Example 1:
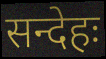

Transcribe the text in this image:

सन्देहः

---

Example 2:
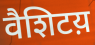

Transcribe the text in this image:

वैशिटय़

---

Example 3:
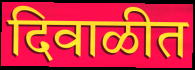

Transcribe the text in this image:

दिवाळीत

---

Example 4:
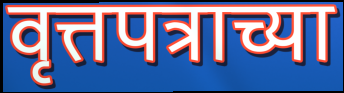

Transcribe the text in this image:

वृत्तपत्राच्या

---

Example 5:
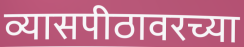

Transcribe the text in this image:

व्यासपीठावरच्या